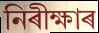
নিৰীক্ষাৰ